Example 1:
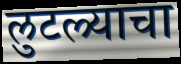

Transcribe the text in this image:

लुटल्याचा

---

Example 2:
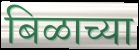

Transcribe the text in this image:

बिळाच्या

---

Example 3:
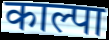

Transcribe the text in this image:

काल्पा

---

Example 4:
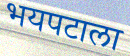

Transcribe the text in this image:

भयपटाला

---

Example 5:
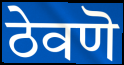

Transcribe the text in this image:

ठेवणॆ